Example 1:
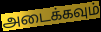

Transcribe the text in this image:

அடைக்கவும்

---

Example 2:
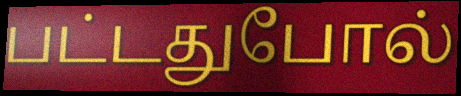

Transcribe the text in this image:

பட்டதுபோல்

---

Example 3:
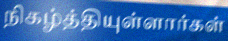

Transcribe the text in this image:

நிகழ்த்தியுள்ளார்கள்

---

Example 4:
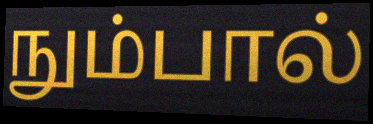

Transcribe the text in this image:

நும்பால்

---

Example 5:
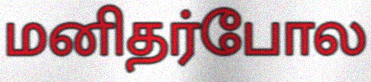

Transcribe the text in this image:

மனிதர்போல